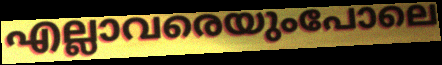
എല്ലാവരെയുംപോലെ